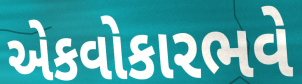
એકવોકારભવે